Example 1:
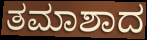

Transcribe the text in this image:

ತಮಾಶಾದ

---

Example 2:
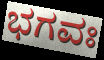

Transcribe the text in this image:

ಭಗವಃ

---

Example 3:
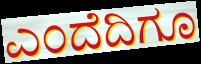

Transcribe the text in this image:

ಎಂದೆದಿಗೂ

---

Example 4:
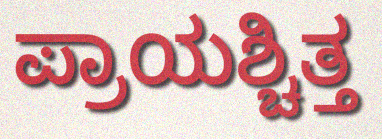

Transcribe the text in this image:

ಪ್ರಾಯಶ್ಚಿತ್ತ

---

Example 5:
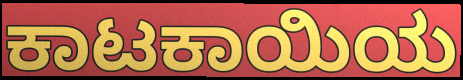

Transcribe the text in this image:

ಕಾಟಕಾಯಿಯ